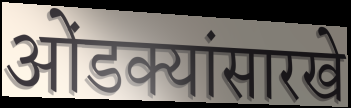
ओंडक्यांसारखे